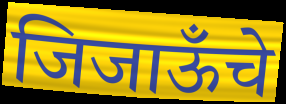
जिजाऊँचे